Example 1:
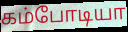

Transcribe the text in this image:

கம்போடியா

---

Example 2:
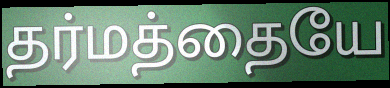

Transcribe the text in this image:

தர்மத்தையே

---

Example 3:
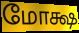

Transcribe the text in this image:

மோக்ஷ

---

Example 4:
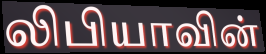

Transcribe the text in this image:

லிபியாவின்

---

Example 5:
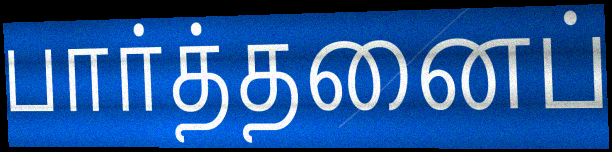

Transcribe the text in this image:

பார்த்தனைப்